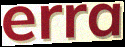
erra